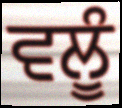
ਵਲੂੰ